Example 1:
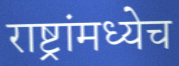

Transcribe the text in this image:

राष्ट्रांमध्येच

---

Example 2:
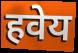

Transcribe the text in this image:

हवेय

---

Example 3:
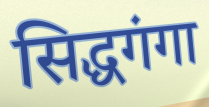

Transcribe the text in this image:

सिद्धगंगा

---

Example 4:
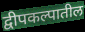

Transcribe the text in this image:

द्वीपकल्पातील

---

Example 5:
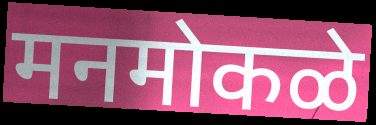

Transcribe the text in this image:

मनमोकळे